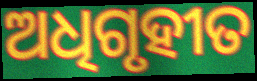
ଅଧିଗୃହୀତ